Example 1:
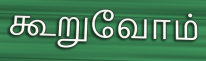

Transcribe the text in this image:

கூறுவோம்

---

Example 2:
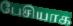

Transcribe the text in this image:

பேசியாக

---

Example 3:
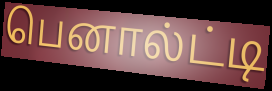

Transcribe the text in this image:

பெனால்ட்டி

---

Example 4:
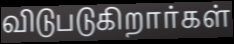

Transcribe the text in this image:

விடுபடுகிறார்கள்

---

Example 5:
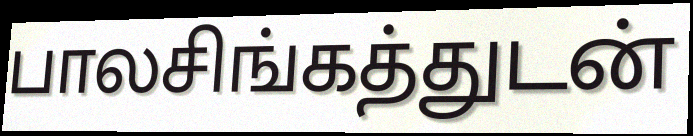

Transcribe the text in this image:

பாலசிங்கத்துடன்